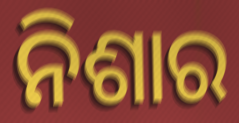
ନିଶାର